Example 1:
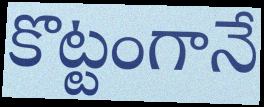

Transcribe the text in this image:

కొట్టంగానే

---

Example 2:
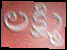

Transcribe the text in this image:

లక్ష్మి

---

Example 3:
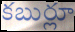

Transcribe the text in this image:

కబుర్లూ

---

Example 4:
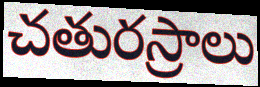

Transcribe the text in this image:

చతురస్రాలు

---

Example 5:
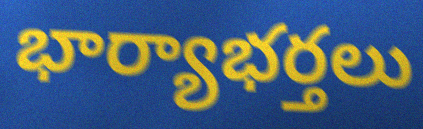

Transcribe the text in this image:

భార్యాభర్తలు